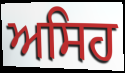
ਅਸਿਹ